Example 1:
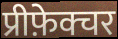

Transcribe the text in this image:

प्रीफ़ेक्चर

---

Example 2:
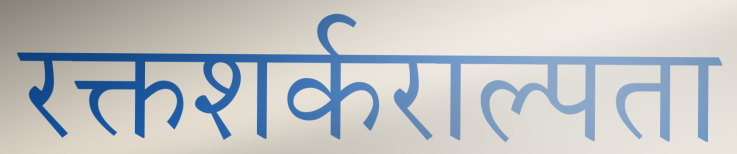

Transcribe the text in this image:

रक्तशर्कराल्पता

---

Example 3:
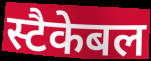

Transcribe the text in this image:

स्टैकेबल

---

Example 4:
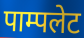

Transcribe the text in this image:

पाम्पलेट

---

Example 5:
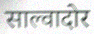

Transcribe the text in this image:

साल्वादोर